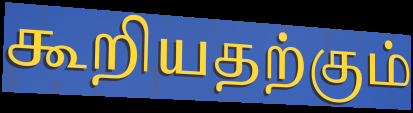
கூறியதற்கும்